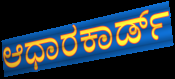
ಆಧಾರಕಾರ್ಡ್